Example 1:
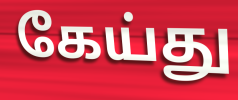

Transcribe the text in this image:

கேய்து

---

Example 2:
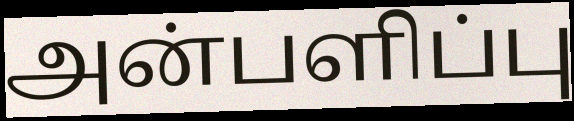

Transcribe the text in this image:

அன்பளிப்பு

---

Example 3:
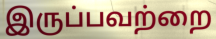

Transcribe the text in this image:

இருப்பவற்றை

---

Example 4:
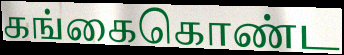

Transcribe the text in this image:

கங்கைகொண்ட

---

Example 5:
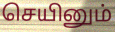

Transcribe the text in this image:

செயினும்